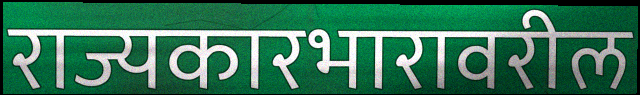
राज्यकारभारावरील